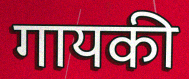
गायकी